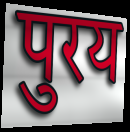
पुरय